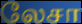
லேசா